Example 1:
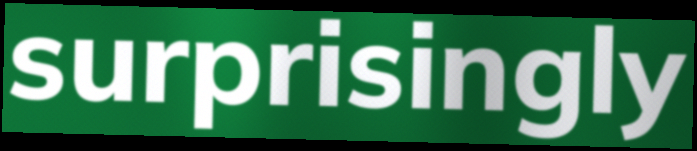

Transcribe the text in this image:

surprisingly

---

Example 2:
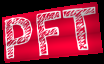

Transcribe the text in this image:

PFT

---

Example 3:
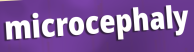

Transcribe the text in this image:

microcephaly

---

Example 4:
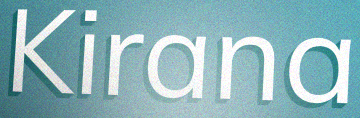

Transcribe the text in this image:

Kirana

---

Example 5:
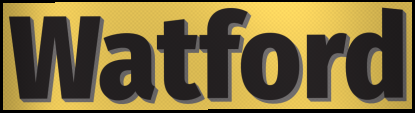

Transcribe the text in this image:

Watford